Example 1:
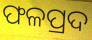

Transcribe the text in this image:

ଫଳପ୍ରଦ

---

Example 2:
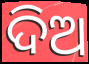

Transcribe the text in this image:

ଦିଅ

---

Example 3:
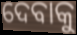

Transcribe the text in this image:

ଦେବାକୁ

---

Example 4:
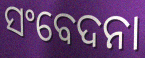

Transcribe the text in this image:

ସଂବେଦନା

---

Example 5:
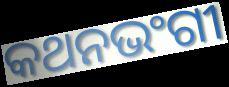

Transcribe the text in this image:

କଥନଭଂଗୀ